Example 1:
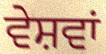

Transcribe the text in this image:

ਵੇਸ਼ਵਾਂ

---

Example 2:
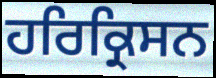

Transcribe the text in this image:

ਹਰਿਕ੍ਰਿਸਨ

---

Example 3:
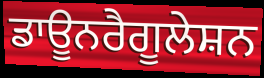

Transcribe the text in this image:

ਡਾਊਨਰੈਗੂਲੇਸ਼ਨ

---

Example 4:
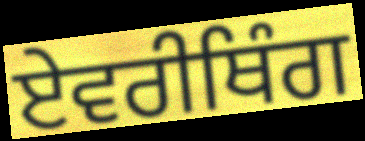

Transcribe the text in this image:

ਏਵਰੀਥਿੰਗ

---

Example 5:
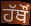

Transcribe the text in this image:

ਹੱਥੌਂ